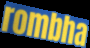
rombha